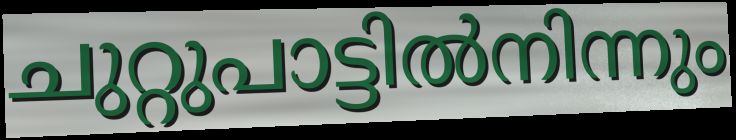
ചുറ്റുപാട്ടിൽനിന്നും